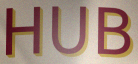
HUB